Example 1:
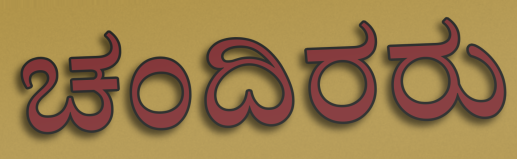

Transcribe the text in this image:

ಚಂದಿರರು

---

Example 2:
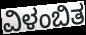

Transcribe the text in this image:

ವಿಳಂಬಿತ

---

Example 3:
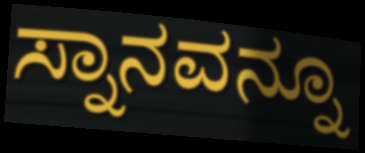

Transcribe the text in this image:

ಸ್ನಾನವನ್ನೂ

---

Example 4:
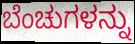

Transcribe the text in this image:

ಬೆಂಚುಗಳನ್ನು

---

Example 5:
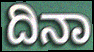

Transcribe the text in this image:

ದಿನಾ